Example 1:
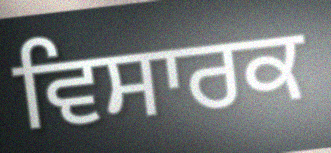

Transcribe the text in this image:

ਵਿਸਾਰਕ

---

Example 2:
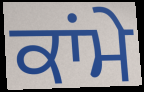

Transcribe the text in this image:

ਕਾਂਮੇ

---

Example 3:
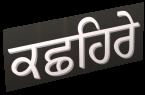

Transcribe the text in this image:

ਕਛਹਿਰੇ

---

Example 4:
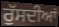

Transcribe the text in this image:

ਰੁੱਸਦੀਆਂ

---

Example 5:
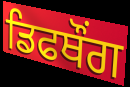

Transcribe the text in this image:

ਡਿਫਥੌਂਗ